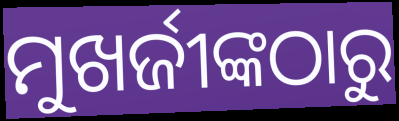
ମୁଖର୍ଜୀଙ୍କଠାରୁ